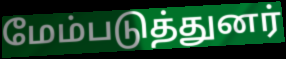
மேம்படுத்துனர்